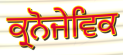
ਕ੍ਰਨੋਜੇਵਿਕ